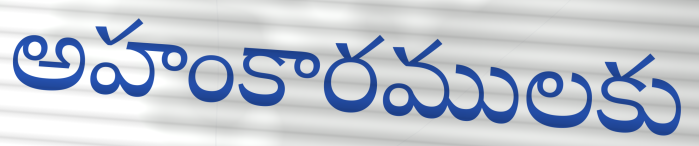
అహంకారములకు